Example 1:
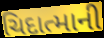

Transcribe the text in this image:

ચિદાત્માની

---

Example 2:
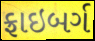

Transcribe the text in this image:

ફ્રાઇબર્ગ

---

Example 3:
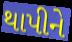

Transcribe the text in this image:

થાપીને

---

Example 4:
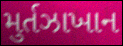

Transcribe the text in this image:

મુર્તઝાખાન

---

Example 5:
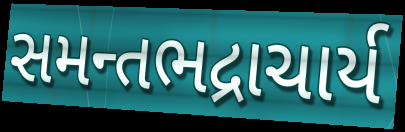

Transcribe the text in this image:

સમન્તભદ્રાચાર્ય